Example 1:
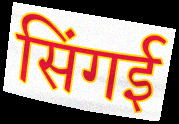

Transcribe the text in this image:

सिंगई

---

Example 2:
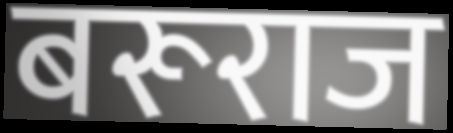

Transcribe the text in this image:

बरूराज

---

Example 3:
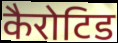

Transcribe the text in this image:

कैरोटिड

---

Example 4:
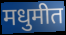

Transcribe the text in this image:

मधुमीत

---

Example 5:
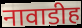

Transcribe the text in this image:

नावाडीह